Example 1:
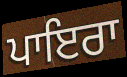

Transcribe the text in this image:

ਪਾਇਰਾ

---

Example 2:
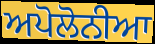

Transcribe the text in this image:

ਅਪੋਲੋਨੀਆ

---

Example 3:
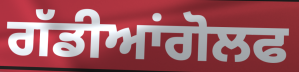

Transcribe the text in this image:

ਗੱਡੀਆਂਗੋਲਫ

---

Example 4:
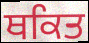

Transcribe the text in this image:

ਥਕਿਤ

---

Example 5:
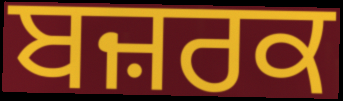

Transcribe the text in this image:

ਬਜ਼ਰਕ